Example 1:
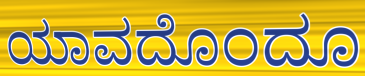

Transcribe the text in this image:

ಯಾವದೊಂದೂ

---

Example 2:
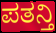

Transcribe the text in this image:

ಪತನ್ತಿ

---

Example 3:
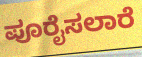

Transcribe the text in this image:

ಪೂರೈಸಲಾರೆ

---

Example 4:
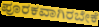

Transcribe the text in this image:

ಪೂರಕವಾಗಿರಬೇಕೆ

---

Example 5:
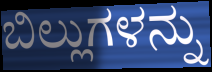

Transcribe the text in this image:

ಬಿಲ್ಲುಗಳನ್ನು